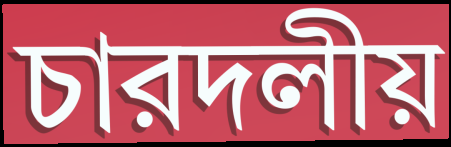
চারদলীয়